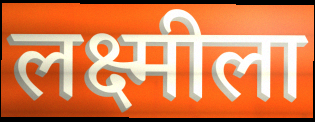
लक्ष्मीला